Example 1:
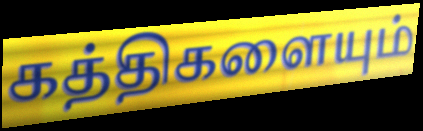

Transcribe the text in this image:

கத்திகளையும்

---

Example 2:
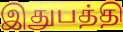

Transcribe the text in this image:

இதுபத்தி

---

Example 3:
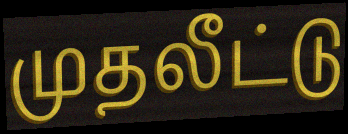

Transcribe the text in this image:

முதலீட்டு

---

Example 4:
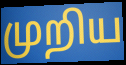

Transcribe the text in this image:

முறிய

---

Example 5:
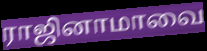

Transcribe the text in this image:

ராஜினாமாவை